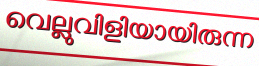
വെല്ലുവിളിയായിരുന്ന